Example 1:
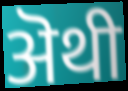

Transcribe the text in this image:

ऄथी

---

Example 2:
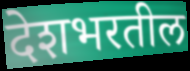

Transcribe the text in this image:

देशभरतील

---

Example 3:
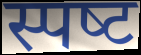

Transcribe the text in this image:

स्‍पष्‍ट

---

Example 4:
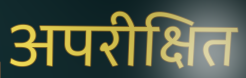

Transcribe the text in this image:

अपरीक्षित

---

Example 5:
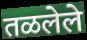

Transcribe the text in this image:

तळलेले